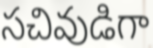
సచివుడిగా